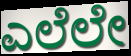
ಎಲೆಲೇ